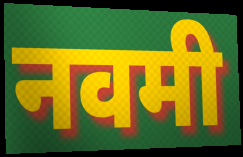
नवमी